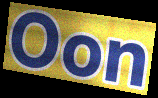
Oon